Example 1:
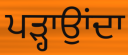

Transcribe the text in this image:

ਪੜ੍ਹਾਉਾਂਦਾ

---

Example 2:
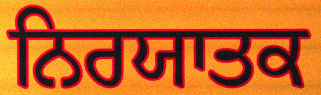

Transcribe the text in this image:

ਨਿਰਯਾਤਕ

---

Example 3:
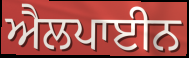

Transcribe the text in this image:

ਐਲਪਾਈਨ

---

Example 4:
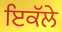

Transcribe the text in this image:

ਇਕੱਲੇ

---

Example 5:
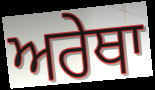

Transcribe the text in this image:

ਅਰੇਥਾ